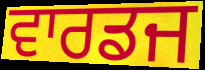
ਵਾਰਡਜ